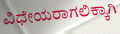
ವಿಧೇಯರಾಗಲಿಕ್ಕಾಗಿ